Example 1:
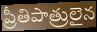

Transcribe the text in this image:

ప్రీతిపాత్రులైన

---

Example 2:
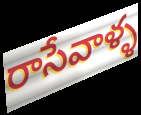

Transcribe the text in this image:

రాసేవాళ్ళ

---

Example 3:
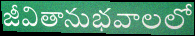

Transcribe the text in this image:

జీవితానుభవాలలో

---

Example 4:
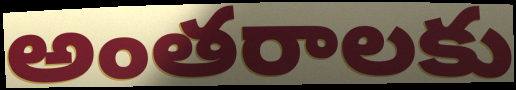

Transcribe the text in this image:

అంతరాలకు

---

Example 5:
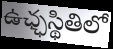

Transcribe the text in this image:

ఉఛ్ఛస్థితిలో